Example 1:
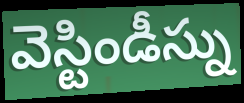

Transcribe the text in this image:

వెస్టిండీస్ను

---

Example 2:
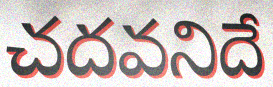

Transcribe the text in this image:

చదవనిదే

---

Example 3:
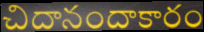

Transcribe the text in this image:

చిదానందాకారం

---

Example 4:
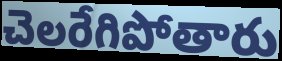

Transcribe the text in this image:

చెలరేగిపోతారు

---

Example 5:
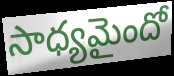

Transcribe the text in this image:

సాధ్యమైందో